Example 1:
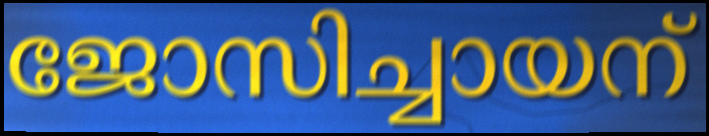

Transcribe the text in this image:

ജോസിച്ചായന്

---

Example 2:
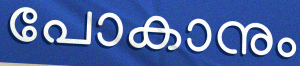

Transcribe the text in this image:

പോകാനും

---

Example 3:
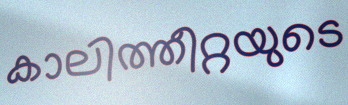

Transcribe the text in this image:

കാലിത്തീറ്റയുടെ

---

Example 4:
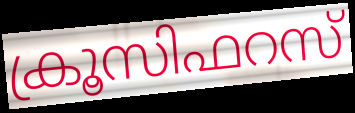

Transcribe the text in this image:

ക്രൂസിഫറസ്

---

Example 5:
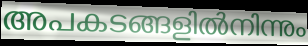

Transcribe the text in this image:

അപകടങ്ങളിൽനിന്നും